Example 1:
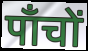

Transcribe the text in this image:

पाँचों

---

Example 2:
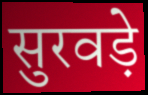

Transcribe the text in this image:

सुरवड़े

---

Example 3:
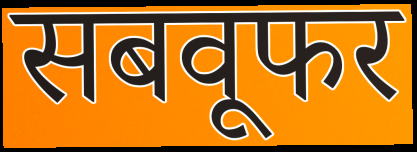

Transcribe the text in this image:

सबवूफर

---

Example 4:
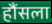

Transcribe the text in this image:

हौंसला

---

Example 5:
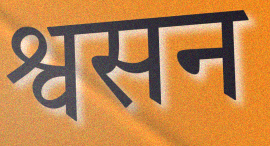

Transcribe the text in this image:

श्वसन